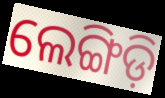
ଲେଙ୍ଗିଡ଼ି